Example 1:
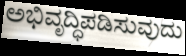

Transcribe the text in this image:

ಅಭಿವೃದ್ಧಿಪಡಿಸುವುದು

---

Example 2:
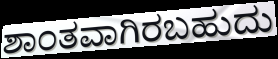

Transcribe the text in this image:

ಶಾಂತವಾಗಿರಬಹುದು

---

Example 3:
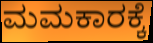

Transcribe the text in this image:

ಮಮಕಾರಕ್ಕೆ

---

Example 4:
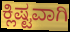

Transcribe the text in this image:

ಕ್ಲಿಷ್ಟವಾಗಿ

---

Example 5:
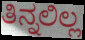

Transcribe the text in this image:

ತಿನ್ನಲಿಲ್ಲ